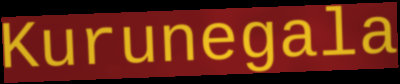
Kurunegala